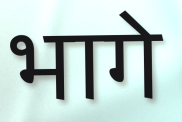
भागे